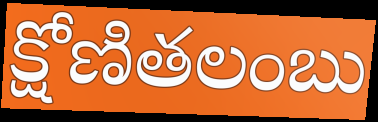
క్షోణితలంబు